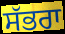
ਸੱਭਰਾ